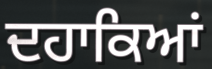
ਦਹਾਕਿਆਂ